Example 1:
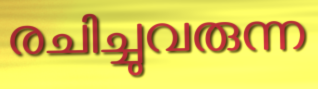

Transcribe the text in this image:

രചിച്ചുവരുന്ന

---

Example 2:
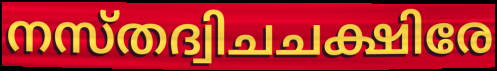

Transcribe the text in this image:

നസ്തദ്വിചചക്ഷിരേ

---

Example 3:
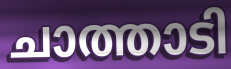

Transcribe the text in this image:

ചാത്താടി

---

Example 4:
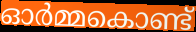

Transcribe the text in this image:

ഓർമ്മകൊണ്ട്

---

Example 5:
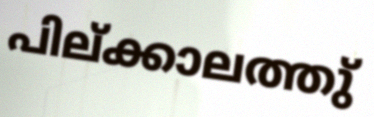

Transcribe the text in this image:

പില്ക്കാലത്തു്